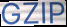
GZIP